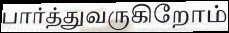
பார்த்துவருகிறோம்